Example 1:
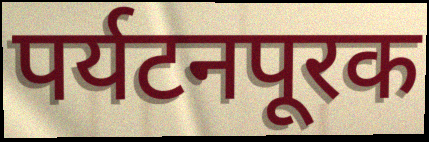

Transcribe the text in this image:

पर्यटनपूरक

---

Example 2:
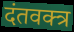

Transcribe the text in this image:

दंतवक्त्र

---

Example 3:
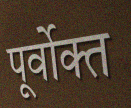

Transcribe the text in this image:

पूर्वोक्त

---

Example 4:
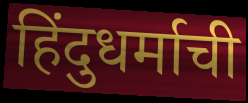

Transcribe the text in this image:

हिंदुधर्माची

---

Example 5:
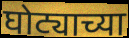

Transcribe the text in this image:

घोट्याच्या